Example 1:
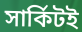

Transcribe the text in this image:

সার্কিটই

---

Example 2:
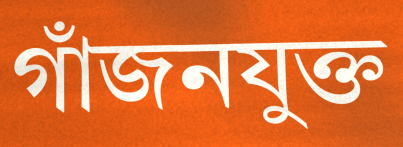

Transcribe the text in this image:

গাঁজনযুক্ত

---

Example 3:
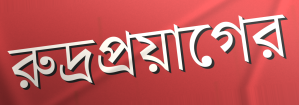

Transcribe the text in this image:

রুদ্রপ্রয়াগের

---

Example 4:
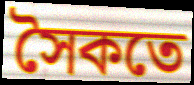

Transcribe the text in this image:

সৈকতে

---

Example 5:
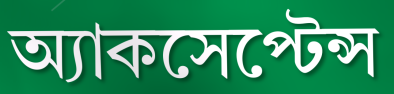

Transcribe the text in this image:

অ্যাকসেপ্টেন্স